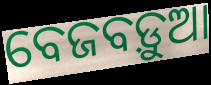
ବେଜବଡ଼ୁଆ